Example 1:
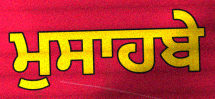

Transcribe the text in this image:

ਮੁਸਾਹਬੇ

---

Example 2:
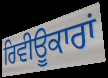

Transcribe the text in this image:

ਰਿਵੀਊਕਾਰਾਂ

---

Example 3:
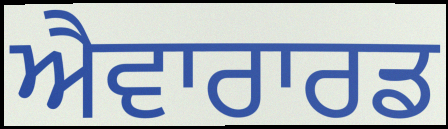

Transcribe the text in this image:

ਐਵਾਰਾਰਡ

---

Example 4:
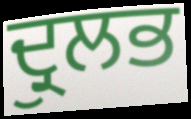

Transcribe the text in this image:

ਦ੍ਰੁਲਭ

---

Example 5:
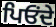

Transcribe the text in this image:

ਪਿਓਂਦੇ